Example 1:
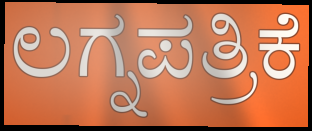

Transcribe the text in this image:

ಲಗ್ನಪತ್ರಿಕೆ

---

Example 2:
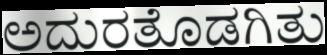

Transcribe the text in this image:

ಅದುರತೊಡಗಿತು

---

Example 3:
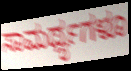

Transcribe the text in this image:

ಸಾಮರ್ಥ್ಯಗಳೂ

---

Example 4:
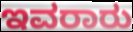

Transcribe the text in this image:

ಇವರಾರು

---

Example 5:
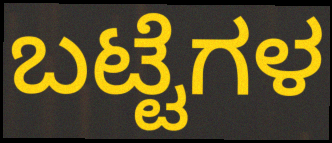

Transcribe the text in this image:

ಬಟ್ಟೆಗಳ